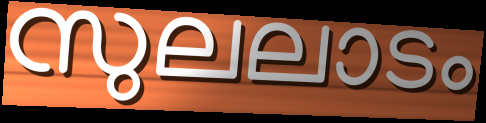
സുലലാടം